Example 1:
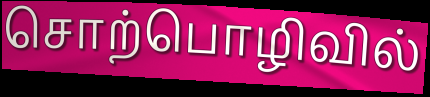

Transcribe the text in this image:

சொற்பொழிவில்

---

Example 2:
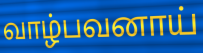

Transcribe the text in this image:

வாழ்பவனாய்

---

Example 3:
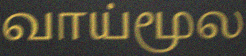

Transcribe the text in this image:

வாய்மூல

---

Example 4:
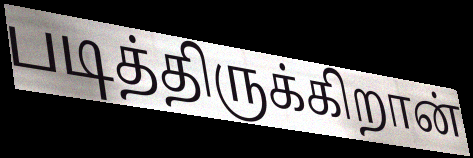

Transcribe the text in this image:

படித்திருக்கிறான்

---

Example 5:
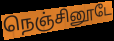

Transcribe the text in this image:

நெஞ்சினூடே